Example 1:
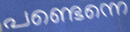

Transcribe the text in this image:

പണ്ടെന്നെ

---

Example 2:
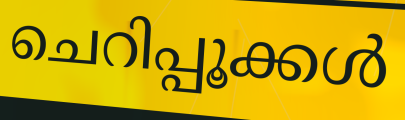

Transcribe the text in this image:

ചെറിപ്പൂക്കൾ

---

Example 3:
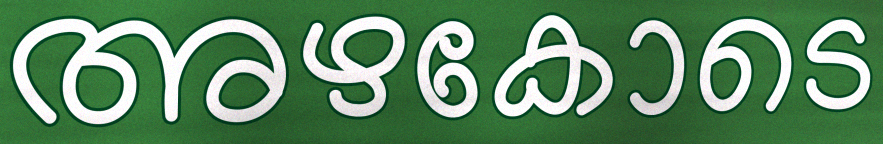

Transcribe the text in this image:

അഴകോടെ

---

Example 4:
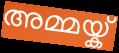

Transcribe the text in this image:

അമ്മയ്ക്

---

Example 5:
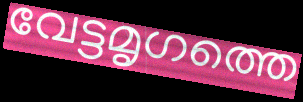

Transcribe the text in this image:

വേട്ടമൃഗത്തെ